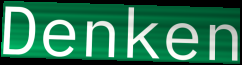
Denken